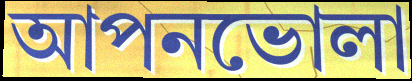
আপনভোলা